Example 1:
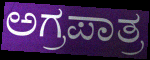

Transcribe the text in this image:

ಅಗ್ರಪಾತ್ರ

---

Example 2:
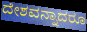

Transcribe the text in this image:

ದೇಶವನ್ನಾದರೂ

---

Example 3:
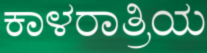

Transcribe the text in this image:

ಕಾಳರಾತ್ರಿಯ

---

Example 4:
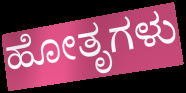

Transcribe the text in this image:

ಹೋತೃಗಳು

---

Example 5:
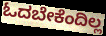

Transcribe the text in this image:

ಓದಬೇಕೆಂದಿಲ್ಲ